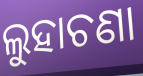
ଲୁହାଚଣା